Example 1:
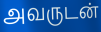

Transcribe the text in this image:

அவருடன்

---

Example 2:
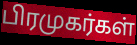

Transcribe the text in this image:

பிரமுகர்கள்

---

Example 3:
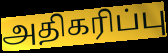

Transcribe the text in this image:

அதிகரிப்பு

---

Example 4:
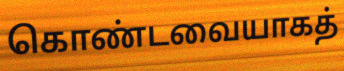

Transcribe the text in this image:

கொண்டவையாகத்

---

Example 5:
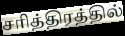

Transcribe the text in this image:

சரித்திரத்தில்